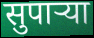
सुपार्‍या